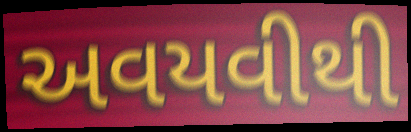
અવયવીથી